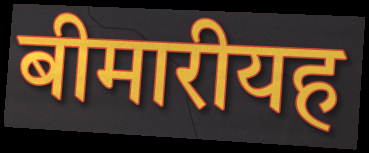
बीमारीयह